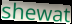
shewat